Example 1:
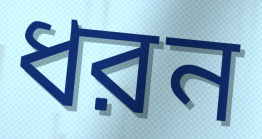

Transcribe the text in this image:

ধরন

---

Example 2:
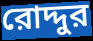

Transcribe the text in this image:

রোদ্দুর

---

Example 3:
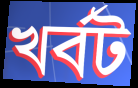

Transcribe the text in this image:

খর্বট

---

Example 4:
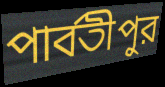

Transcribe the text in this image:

পার্বতীপুর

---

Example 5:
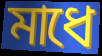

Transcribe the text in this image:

মাধে